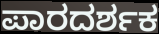
ಪಾರದರ್ಶಕ